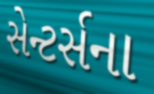
સેન્ટર્સના